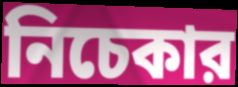
নিচেকার